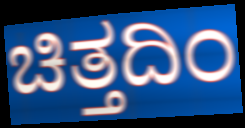
ಚಿತ್ತದಿಂ